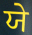
ਯੇ